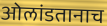
ओलांडतानाच